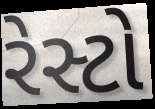
રેસ્ટો